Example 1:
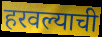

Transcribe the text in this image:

हरवल्याची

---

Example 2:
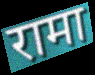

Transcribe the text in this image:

रामा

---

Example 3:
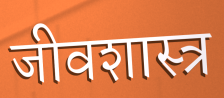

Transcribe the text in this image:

जीवशास्त्र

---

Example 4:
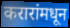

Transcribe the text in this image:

करारांमधून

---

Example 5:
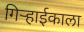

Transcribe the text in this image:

गिऱ्हाईकाला